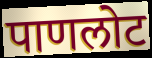
पाणलोट